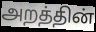
அறத்தின்